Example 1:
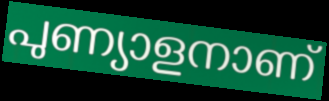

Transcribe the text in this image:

പുണ്യാളനാണ്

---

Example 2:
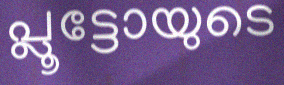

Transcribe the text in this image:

പ്ലൂട്ടോയുടെ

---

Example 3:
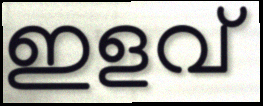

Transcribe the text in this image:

ഇളവ്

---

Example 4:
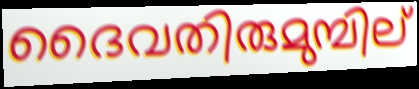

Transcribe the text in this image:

ദൈവതിരുമുമ്പില്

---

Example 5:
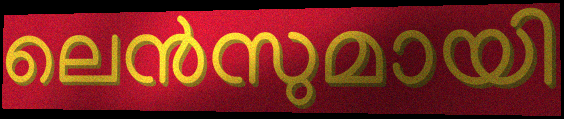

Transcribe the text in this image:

ലെൻസുമായി